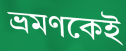
ভ্রমণকেই